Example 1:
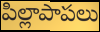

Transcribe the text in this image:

పిల్లాపాపలు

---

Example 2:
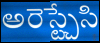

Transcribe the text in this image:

అరెస్ట్చేసి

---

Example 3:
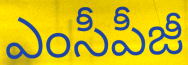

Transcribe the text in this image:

ఎంసీపీజీ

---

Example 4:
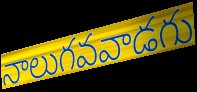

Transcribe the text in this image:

నాలుగవవాడగు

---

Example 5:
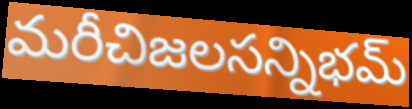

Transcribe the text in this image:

మరీచిజలసన్నిభమ్